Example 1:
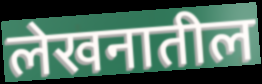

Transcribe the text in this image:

लेखनातील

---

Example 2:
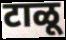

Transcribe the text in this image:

टाळू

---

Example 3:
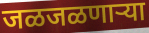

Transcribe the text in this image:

जळजळणाऱ्या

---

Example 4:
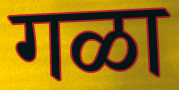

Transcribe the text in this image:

गळा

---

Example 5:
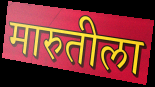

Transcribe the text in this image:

मारुतीला